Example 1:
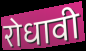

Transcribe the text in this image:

रोधावी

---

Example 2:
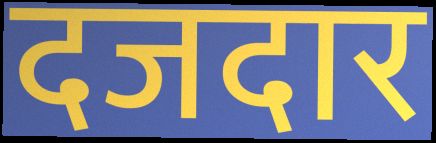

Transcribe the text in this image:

दजदार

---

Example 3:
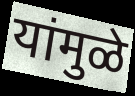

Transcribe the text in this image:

यांमुळे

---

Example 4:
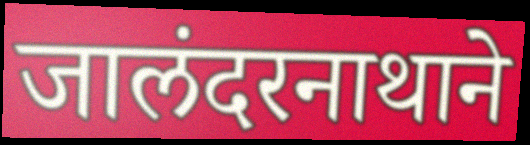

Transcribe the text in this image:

जालंदरनाथाने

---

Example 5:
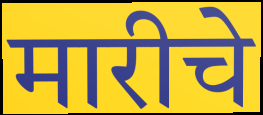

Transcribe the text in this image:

मारीचे